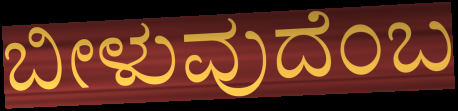
ಬೀಳುವುದೆಂಬ